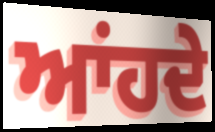
ਆਂਹਦੇ